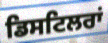
ਡਿਸਟਿਲਰਾਂ